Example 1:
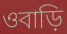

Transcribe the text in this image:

ওবাড়ি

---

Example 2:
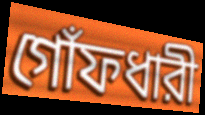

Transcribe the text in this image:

গোঁফধারী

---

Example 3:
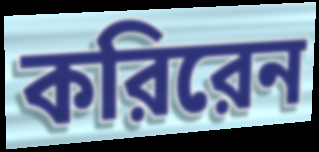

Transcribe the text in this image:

করিরেন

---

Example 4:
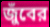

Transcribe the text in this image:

জুঁবের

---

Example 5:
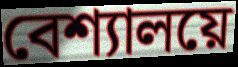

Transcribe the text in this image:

বেশ্যালয়ে